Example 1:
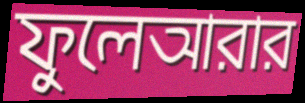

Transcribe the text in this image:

ফুলেআরার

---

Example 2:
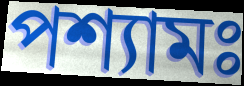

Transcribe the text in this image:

পশ্যামঃ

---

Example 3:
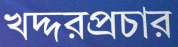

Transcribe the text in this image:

খদ্দরপ্রচার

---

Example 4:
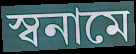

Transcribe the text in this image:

স্বনামে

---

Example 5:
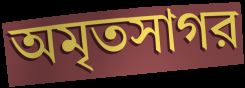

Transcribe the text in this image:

অমৃতসাগর